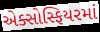
એક્સોસ્ફિયરમાં